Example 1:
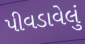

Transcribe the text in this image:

પીવડાવેલું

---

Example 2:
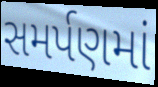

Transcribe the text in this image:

સમર્પણમાં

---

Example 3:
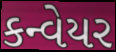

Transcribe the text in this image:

કન્વેયર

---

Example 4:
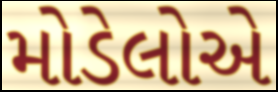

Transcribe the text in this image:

મોડેલોએ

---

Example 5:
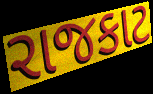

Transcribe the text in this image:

રાજકાટ